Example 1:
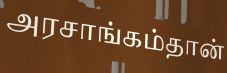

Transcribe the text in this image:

அரசாங்கம்தான்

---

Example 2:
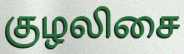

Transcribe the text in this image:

குழலிசை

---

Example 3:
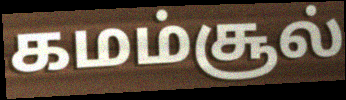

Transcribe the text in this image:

கமம்சூல்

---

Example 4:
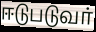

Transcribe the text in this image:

ஈடுபடுவர்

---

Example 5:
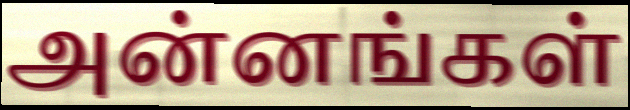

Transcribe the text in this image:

அன்னங்கள்